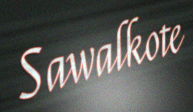
Sawalkote